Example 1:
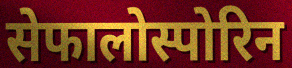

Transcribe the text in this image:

सेफालोस्पोरिन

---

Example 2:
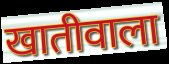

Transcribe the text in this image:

खातीवाला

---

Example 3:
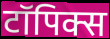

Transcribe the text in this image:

टॉपिक्स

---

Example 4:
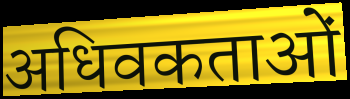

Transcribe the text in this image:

अधिवकताओं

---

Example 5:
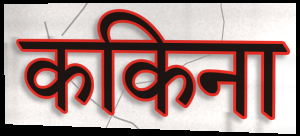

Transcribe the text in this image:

ककिना